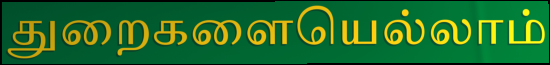
துறைகளையெல்லாம்